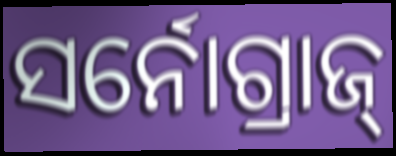
ସର୍ନୋଗ୍ରାଜ୍